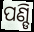
ପଣ୍ଡି